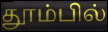
தூம்பில்